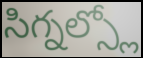
సిగ్నల్స్లో